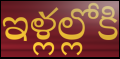
ఇళ్లల్లోకి